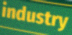
industry